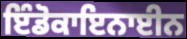
ਇੰਡੋਕਾਇਨਾਈਨ